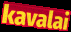
kavalai